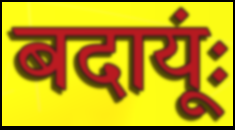
बदायूंः